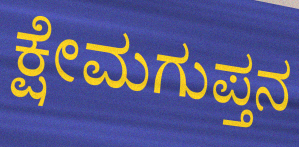
ಕ್ಷೇಮಗುಪ್ತನ